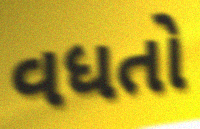
વધતો